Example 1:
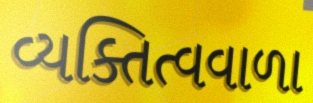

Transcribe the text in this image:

વ્યક્તિત્વવાળા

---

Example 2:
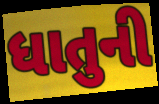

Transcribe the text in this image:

ધાતુની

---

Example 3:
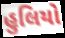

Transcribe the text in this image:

હુલિયો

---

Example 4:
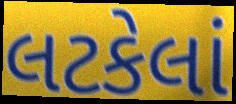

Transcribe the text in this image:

લટકેલાં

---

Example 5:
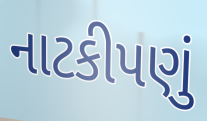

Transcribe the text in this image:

નાટકીપણું